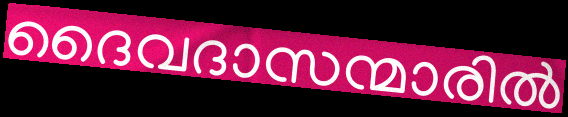
ദൈവദാസന്മാരിൽ